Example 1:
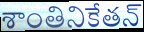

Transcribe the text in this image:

శాంతినికేతన్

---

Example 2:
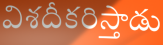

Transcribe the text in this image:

విశదీకరిస్తాడు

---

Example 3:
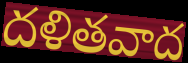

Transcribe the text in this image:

దళితవాద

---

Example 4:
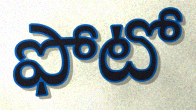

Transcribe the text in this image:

ఫోటో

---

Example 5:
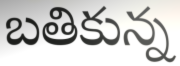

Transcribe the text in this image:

బతికున్న